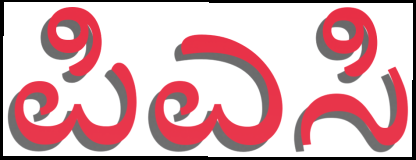
ಪಿಎಸಿ